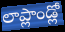
లాప్లాండ్లో